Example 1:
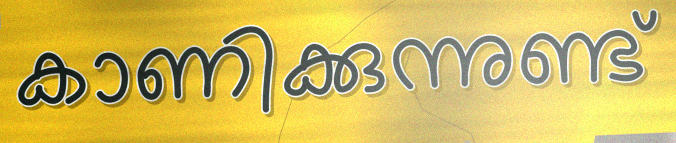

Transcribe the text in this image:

കാണിക്കുന്നുണ്ട്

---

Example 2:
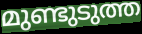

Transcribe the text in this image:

മുണ്ടുടുത്ത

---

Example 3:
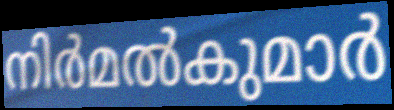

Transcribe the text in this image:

നിർമൽകുമാർ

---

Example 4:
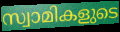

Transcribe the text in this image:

സ്വാമികളുടെ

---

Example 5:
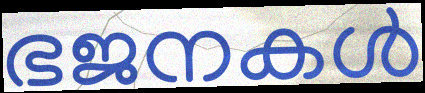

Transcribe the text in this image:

ഭജനകൾ